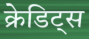
क्रेडिट्स